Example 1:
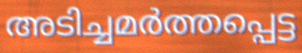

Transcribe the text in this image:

അടിച്ചമർത്തപ്പെട്ട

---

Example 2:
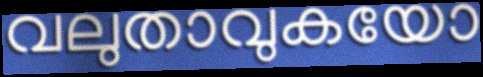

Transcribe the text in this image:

വലുതാവുകയോ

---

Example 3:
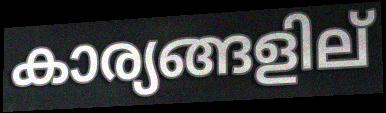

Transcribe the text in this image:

കാര്യങ്ങളില്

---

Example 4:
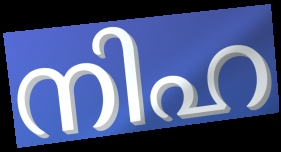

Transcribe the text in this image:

നിഹ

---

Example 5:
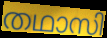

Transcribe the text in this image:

തഥാസി